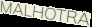
MALHOTRA